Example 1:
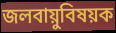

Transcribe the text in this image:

জলবায়ুবিষয়ক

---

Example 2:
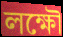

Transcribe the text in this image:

লক্ষৌ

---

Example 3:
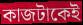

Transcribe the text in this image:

কাজটাকেই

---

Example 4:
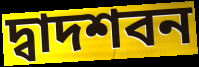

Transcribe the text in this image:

দ্বাদশবন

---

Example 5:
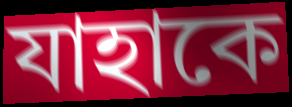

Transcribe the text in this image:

যাহাকে